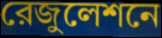
রেজুলেশনে